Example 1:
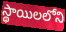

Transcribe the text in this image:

స్థాయిలలోని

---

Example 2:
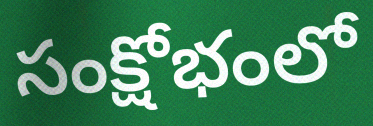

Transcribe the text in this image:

సంక్షోభంలో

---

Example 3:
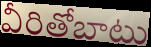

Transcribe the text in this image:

వీరితోబాటు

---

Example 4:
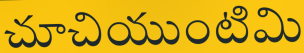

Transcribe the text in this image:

చూచియుంటిమి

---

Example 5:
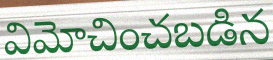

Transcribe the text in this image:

విమోచించబడిన